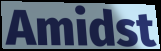
Amidst